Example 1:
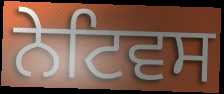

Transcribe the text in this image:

ਨੇਟਿਵਸ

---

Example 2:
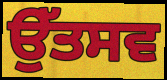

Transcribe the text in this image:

ਉੱਤਸਵ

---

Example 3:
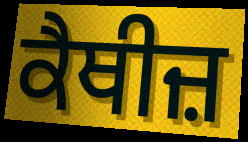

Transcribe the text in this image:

ਕੈਥੀਜ਼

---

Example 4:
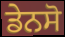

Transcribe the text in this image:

ਡੇਨਸੋ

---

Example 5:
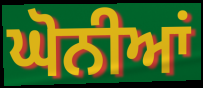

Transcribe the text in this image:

ਘੋਨੀਆਂ